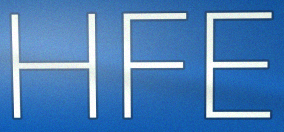
HFE